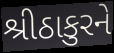
શ્રીઠાકુરને